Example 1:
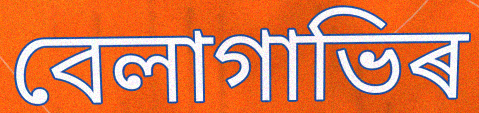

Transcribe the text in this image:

বেলাগাভিৰ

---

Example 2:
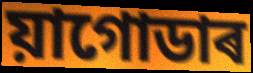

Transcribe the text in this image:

য়াগোডাৰ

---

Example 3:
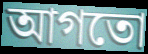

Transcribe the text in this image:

আগতো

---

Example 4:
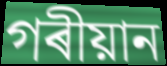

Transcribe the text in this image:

গৰীয়ান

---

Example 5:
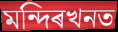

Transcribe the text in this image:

মন্দিৰখনত